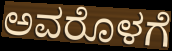
ಅವರೊಳಗೆ